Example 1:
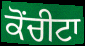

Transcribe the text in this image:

ਕੋਂਚੀਟਾ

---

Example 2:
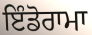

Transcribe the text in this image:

ਇੰਡੋਰਾਮਾ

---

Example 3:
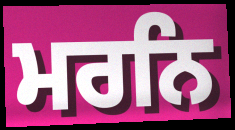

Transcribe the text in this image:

ਮਰਨਿ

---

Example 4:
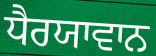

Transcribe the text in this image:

ਧੈਰਯਾਵਾਨ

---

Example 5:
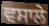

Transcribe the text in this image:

ਵਸਾਲੇ